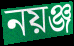
নয়ঞ্জ